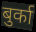
बुर्का